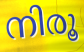
നിരൂ